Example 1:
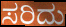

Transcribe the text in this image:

ಸರಿದು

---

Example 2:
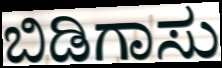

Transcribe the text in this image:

ಬಿಡಿಗಾಸು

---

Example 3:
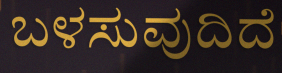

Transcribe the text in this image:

ಬಳಸುವುದಿದೆ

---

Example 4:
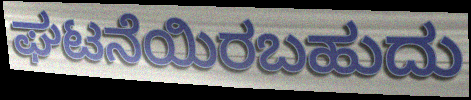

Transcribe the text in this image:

ಘಟನೆಯಿರಬಹುದು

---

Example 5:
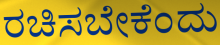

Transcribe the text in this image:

ರಚಿಸಬೇಕೆಂದು